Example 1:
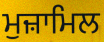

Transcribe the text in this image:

ਮੁਜ਼ਾਮਿਲ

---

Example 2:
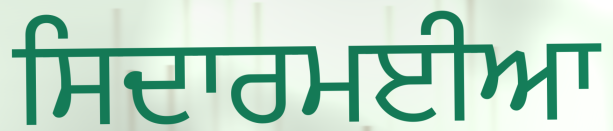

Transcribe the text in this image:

ਸਿਦਾਰਮਈਆ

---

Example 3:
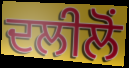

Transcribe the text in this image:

ਦਲੀਲੋਂ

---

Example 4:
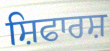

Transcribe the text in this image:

ਸ਼ਿਫਾਰਸ਼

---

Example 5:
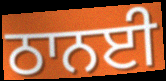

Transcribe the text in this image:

ਠਾਨਈ